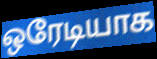
ஒரேடியாக